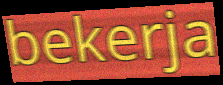
bekerja